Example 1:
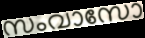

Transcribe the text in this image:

സംവാസോ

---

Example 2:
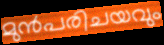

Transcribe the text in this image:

മുൻപരിചയവും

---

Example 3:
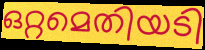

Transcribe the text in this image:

ഒറ്റമെതിയടി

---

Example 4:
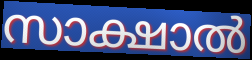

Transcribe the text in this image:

സാക്ഷാൽ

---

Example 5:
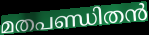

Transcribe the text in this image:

മതപണ്ഡിതൻ